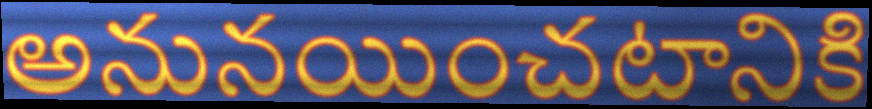
అనునయించటానికి